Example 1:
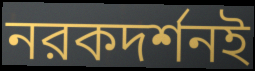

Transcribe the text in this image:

নরকদর্শনই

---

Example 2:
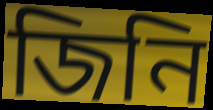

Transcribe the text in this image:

জিনি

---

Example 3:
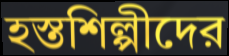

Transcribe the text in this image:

হস্তশিল্পীদের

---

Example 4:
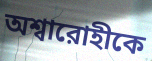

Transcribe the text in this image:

অশ্বারোহীকে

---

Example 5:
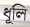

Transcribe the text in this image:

ধূলি